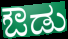
ಔಡು